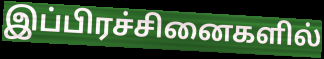
இப்பிரச்சினைகளில்